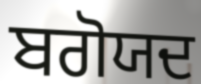
ਬਗੋਯਦ